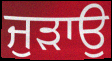
ਜੁੜਾਉ